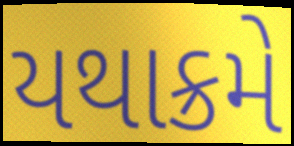
યથાક્રમે